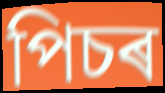
পিচৰ